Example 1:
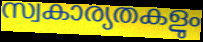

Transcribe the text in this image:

സ്വകാര്യതകളും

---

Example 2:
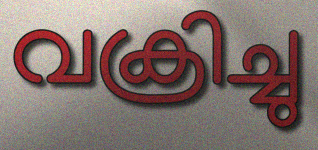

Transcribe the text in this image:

വക്രിച്ചു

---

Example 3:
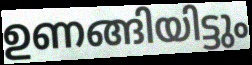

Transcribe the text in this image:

ഉണങ്ങിയിട്ടും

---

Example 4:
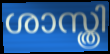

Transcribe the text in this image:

ശാസ്ത്രി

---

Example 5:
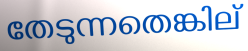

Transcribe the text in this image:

തേടുന്നതെങ്കില്